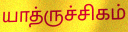
யாத்ருச்சிகம்